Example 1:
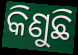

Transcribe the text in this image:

କିଣୁଛି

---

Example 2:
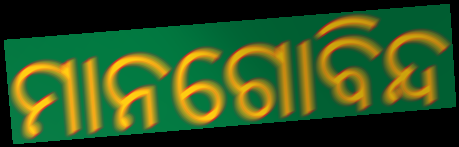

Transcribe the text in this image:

ମାନଗୋବିନ୍ଦ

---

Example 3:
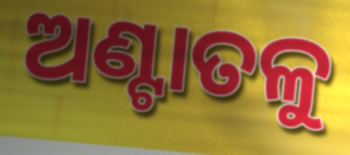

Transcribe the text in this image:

ଅଣ୍ଟାତଳୁ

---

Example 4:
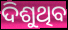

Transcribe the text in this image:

ଦିଶୁଥିବ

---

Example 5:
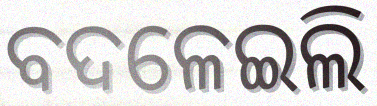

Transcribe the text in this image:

ବଦଳେଇଲି